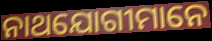
ନାଥଯୋଗୀମାନେ